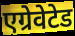
एग्रेवेटेड